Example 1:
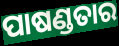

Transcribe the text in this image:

ପାଷଣ୍ଡତାର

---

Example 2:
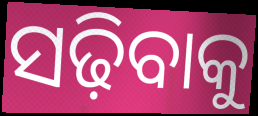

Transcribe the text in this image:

ସଢ଼ିବାକୁ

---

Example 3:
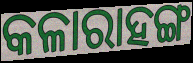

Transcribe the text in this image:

କଳାରାହଙ୍ଗ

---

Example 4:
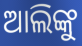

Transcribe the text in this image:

ଆଲିଙ୍କୁ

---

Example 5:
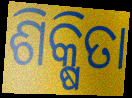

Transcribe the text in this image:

ଶିକ୍ଷିତା